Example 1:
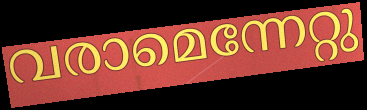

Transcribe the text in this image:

വരാമെന്നേറ്റു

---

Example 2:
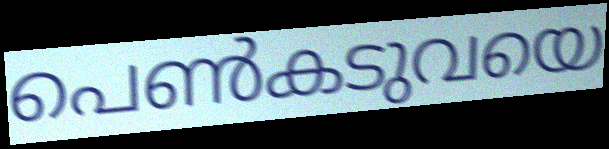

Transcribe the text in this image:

പെൺകടുവയെ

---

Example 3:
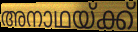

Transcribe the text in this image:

അനാഥയ്ക്ക്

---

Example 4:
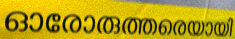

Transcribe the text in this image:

ഓരോരുത്തരെയായി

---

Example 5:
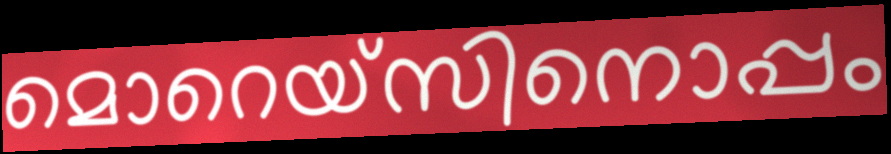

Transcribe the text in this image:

മൊറെയ്സിനൊപ്പം